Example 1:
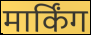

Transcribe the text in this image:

मार्किंग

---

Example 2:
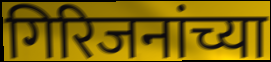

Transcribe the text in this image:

गिरिजनांच्या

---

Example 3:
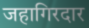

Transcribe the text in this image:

जहागिरदार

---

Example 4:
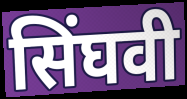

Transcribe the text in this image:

सिंघवी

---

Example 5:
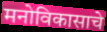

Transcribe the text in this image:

मनोविकासाचे